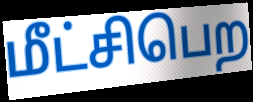
மீட்சிபெற